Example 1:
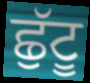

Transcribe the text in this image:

ਛੁੱਟੂ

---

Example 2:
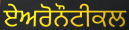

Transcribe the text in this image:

ਏਅਰੋਨੌਟੀਕਲ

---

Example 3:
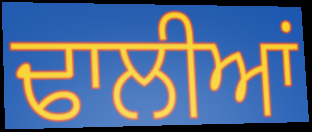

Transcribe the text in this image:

ਢਾਲੀਆਂ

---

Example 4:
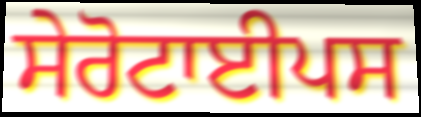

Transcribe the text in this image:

ਸੇਰੋਟਾਈਪਸ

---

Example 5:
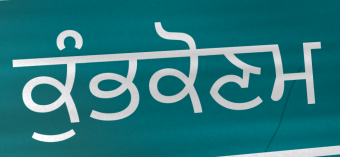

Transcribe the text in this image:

ਕੁੰਭਕੋਣਮ